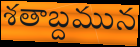
శతాబ్దమున